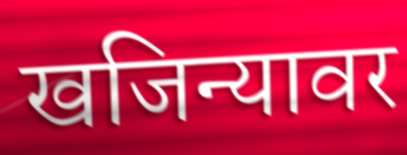
खजिन्यावर